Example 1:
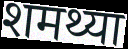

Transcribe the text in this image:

शमथ्या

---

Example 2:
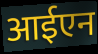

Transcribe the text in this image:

आईएन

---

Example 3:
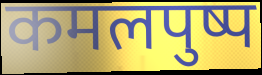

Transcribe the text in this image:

कमलपुष्प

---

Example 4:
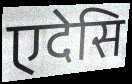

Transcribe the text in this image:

एदेसि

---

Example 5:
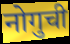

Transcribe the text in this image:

नोगुची